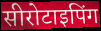
सीरोटाइपिंग